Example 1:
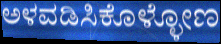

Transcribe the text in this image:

ಅಳವಡಿಸಿಕೊಳ್ಳೋಣ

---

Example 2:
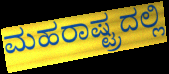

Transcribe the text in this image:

ಮಹರಾಷ್ಟ್ರದಲ್ಲಿ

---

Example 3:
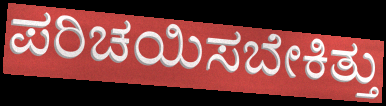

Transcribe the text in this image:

ಪರಿಚಯಿಸಬೇಕಿತ್ತು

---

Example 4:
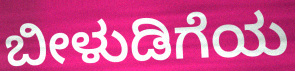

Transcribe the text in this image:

ಬೀಳುಡಿಗೆಯ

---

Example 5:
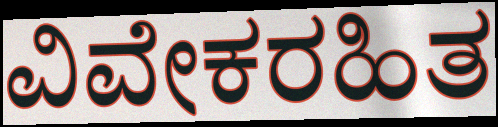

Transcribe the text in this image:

ವಿವೇಕರಹಿತ